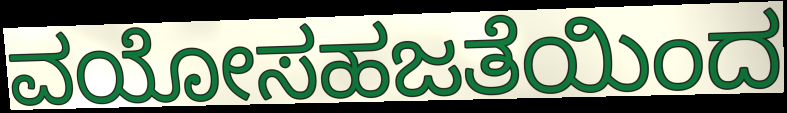
ವಯೋಸಹಜತೆಯಿಂದ